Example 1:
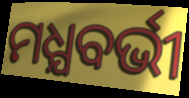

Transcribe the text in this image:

ମଧ୍ଯବର୍ଭୀ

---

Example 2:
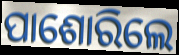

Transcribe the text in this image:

ପାଶୋରିଲେ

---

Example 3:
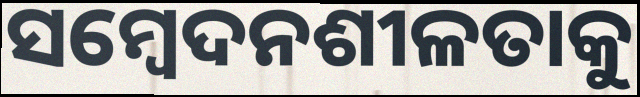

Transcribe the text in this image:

ସମ୍ବେଦନଶୀଳତାକୁ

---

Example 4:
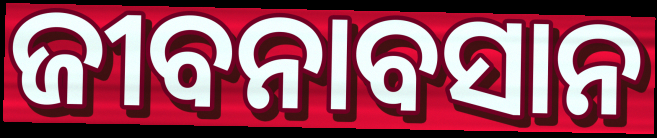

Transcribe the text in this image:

ଜୀବନାବସାନ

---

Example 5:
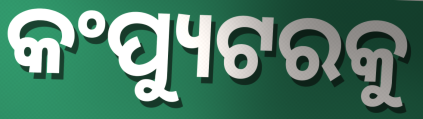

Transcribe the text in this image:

କଂପ୍ୟୁଟରକୁ